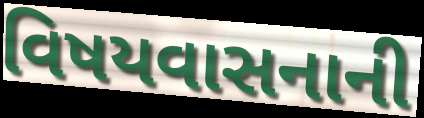
વિષયવાસનાની